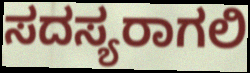
ಸದಸ್ಯರಾಗಲಿ